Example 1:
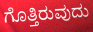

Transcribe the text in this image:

ಗೊತ್ತಿರುವುದು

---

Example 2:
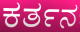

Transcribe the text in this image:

ಕರ್ತನ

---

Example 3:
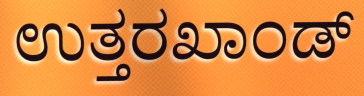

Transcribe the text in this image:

ಉತ್ತರಖಾಂಡ್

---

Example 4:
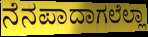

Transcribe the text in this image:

ನೆನಪಾದಾಗಲೆಲ್ಲಾ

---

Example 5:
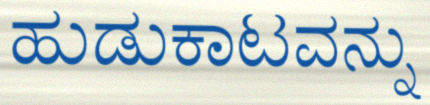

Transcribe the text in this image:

ಹುಡುಕಾಟವನ್ನು